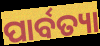
ପାର୍ବତ୍ୟା